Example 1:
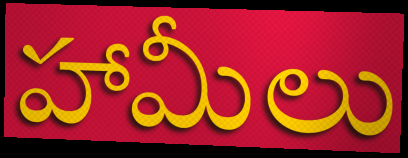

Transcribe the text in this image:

హామీలు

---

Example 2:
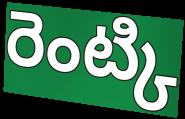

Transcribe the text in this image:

రెంట్కి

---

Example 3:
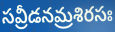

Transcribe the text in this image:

సవ్రీడనమ్రశిరసః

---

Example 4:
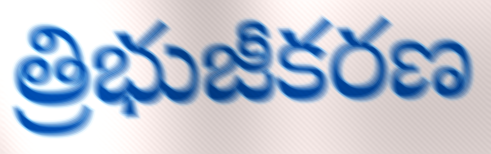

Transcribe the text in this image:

త్రిభుజీకరణ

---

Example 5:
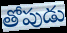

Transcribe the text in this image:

తోపుడు